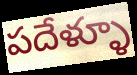
పదేళ్ళూ